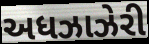
અધઝાઝેરી